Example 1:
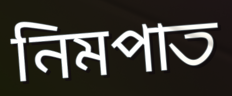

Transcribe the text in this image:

নিমপাত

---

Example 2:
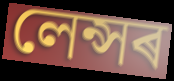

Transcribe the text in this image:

লেন্সৰ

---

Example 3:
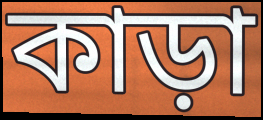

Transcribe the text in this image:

কাড়া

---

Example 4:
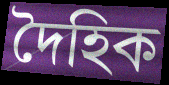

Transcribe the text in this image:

দৈহিক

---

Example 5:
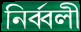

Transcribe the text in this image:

নিৰ্ব্বলী